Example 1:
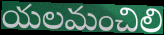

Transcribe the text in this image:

యలమంచిలి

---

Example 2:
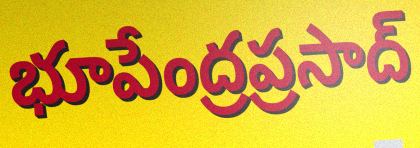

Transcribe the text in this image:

భూపేంద్రప్రసాద్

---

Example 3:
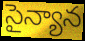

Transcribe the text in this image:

సైన్యాన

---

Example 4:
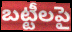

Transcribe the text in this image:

బట్టీలపై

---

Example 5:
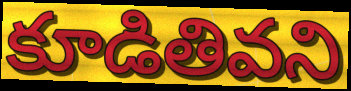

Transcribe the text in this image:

కూడితివని